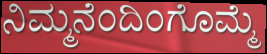
ನಿಮ್ಮನೆಂದಿಂಗೊಮ್ಮೆ